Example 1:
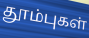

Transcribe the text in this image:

தூம்புகள்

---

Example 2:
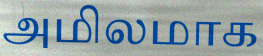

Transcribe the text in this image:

அமிலமாக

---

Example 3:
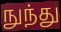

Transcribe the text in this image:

நுந்து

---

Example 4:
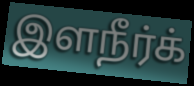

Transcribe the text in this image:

இளநீர்க்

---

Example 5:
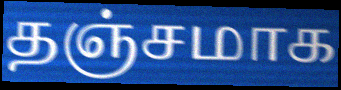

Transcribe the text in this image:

தஞ்சமாக